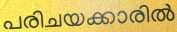
പരിചയക്കാരിൽ